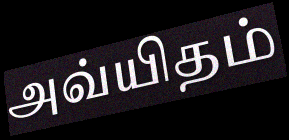
அவ்யிதம்